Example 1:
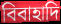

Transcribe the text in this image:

বিবাহাদি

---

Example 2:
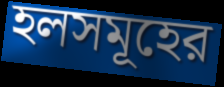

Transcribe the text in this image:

হলসমূহের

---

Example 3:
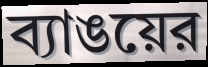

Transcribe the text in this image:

ব্যাঙয়ের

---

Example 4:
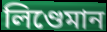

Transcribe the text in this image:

লিণ্ডেমান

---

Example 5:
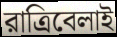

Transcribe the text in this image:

রাত্রিবেলাই